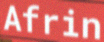
Afrin